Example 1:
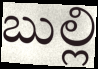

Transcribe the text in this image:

బుల్లి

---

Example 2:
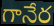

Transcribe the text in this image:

గానేర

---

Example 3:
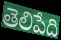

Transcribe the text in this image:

తెలిపేది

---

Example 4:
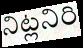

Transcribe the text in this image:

నిట్లనిరి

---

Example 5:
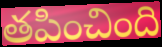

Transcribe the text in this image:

తపించింది